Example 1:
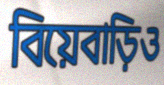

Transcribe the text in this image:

বিয়েবাড়িও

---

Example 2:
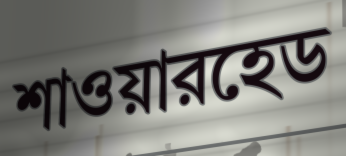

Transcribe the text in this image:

শাওয়ারহেড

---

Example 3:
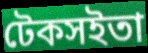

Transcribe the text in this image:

টেকসইতা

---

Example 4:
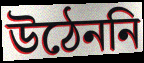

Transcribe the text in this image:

উঠেননি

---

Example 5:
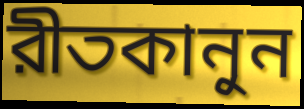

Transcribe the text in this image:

রীতকানুন